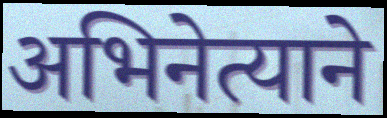
अभिनेत्याने